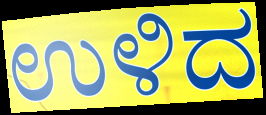
ಉಳಿದ